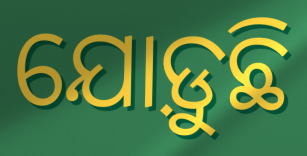
ଯୋଡ଼ୁଛି